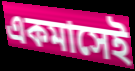
একমাসেই